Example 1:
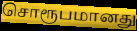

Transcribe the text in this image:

சொரூபமானது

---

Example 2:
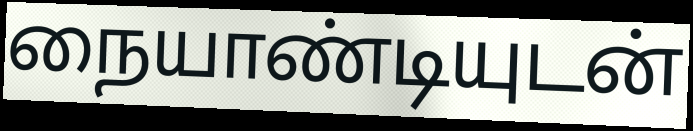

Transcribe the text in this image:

நையாண்டியுடன்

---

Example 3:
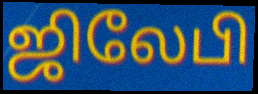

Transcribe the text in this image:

ஜிலேபி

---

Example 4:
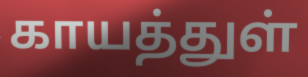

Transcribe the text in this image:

காயத்துள்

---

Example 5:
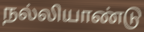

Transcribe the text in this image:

நல்லியாண்டு